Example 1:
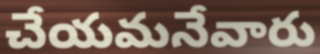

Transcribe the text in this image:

చేయమనేవారు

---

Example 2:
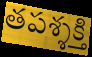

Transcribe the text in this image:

తపశ్శక్తి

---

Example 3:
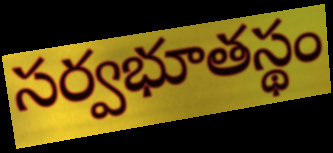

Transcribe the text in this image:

సర్వభూతస్థం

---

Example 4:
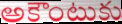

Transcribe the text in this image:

అకౌంటుకు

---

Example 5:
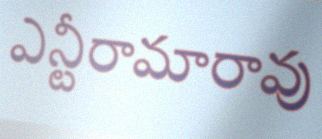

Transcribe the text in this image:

ఎన్టీరామారావు